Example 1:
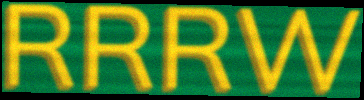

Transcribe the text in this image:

RRRW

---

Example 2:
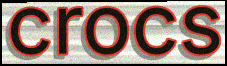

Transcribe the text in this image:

crocs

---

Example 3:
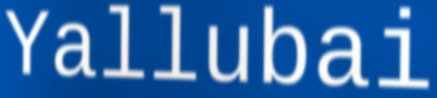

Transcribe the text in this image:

Yallubai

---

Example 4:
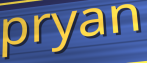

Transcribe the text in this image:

pryan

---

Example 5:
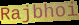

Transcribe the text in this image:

Rajbhoi